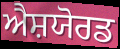
ਐਸ਼ਯੋਰਡ